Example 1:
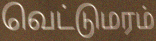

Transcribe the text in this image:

வெட்டுமரம்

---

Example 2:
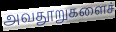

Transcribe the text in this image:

அவதூறுகளைச்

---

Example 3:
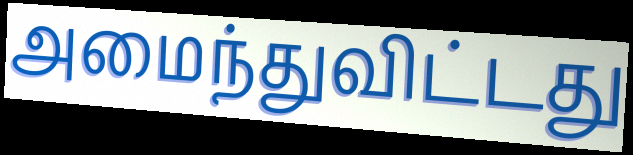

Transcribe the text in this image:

அமைந்துவிட்டது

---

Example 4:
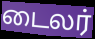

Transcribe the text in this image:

டைலர்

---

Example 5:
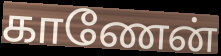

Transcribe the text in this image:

காணேன்